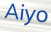
Aiyo